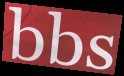
bbs